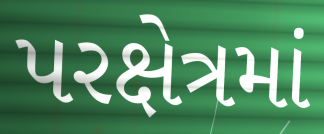
પરક્ષેત્રમાં